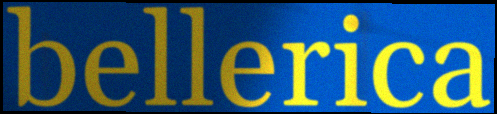
bellerica